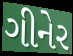
ગીનેર